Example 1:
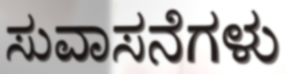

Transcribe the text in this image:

ಸುವಾಸನೆಗಳು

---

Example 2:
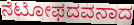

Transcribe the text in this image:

ನೆಟೋಫದವನಾದ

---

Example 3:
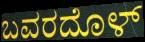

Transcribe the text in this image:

ಬವರದೊಳ್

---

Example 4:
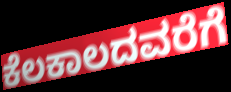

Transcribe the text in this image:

ಕೆಲಕಾಲದವರೆಗೆ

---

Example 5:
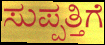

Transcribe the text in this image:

ಸುಪ್ಪತ್ತಿಗೆ